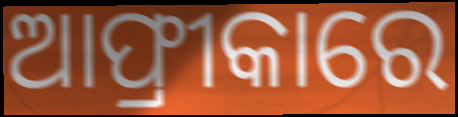
ଆଫ୍ରୀକାରେ